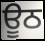
ਊਠ